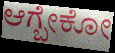
ಆಗ್ಬೇಕೋ